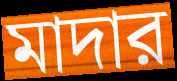
মাদার